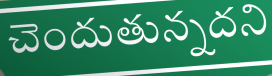
చెందుతున్నదని